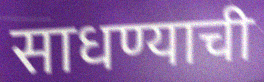
साधण्याची